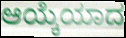
ಆಯ್ಕೆಯಾದ